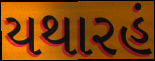
યથારહં